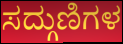
ಸದ್ಗುಣಿಗಳ